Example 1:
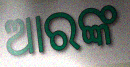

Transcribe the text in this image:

ଆରଙ୍କ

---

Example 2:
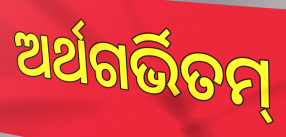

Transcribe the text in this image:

ଅର୍ଥଗର୍ଭିତମ୍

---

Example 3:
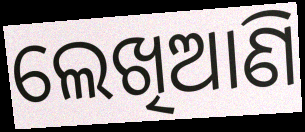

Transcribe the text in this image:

ଲେଖିଆଣି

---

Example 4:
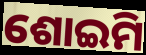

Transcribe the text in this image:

ଶୋଇମି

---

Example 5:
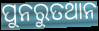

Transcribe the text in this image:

ପୁନରୁତଥାନ